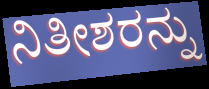
ನಿತೀಶರನ್ನು